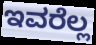
ಇವರೆಲ್ಲ